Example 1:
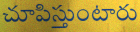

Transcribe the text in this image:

చూపిస్తుంటారు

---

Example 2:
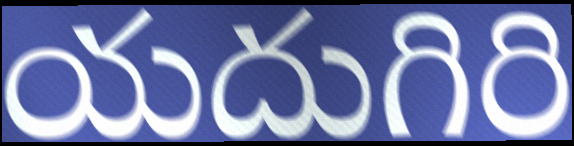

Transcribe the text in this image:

యదుగిరి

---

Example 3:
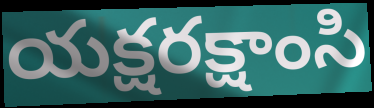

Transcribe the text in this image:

యక్షరక్షాంసి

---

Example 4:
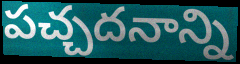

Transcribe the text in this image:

పచ్చదనాన్ని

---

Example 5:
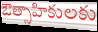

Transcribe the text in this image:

ఔత్సాహికులకు